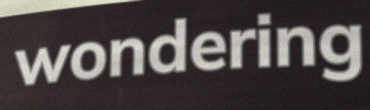
wondering